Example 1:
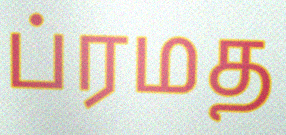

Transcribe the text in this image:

ப்ரமத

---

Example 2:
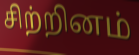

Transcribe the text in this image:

சிற்றினம்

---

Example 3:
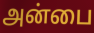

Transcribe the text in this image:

அன்பை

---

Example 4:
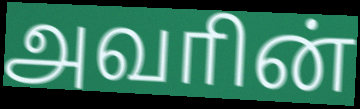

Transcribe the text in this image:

அவரின்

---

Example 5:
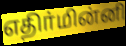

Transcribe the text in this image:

எதிர்மின்னி